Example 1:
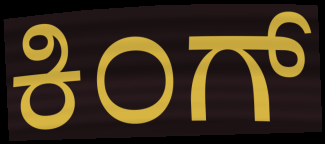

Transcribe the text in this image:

ಕಿಂಗ್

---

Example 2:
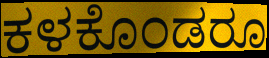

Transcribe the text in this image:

ಕಳಕೊಂಡರೂ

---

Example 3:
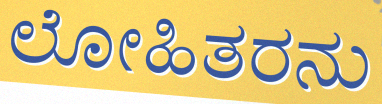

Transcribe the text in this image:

ಲೋಹಿತರನು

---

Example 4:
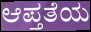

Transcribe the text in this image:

ಆಪ್ತತೆಯ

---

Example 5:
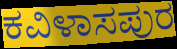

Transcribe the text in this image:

ಕವಿಳಾಸಪುರ